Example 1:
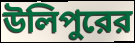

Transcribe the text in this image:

উলিপুরের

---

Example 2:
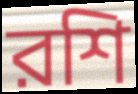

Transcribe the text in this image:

রশি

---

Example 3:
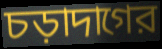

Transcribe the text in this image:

চড়াদাগের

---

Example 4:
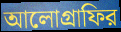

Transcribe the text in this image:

আলোগ্রাফির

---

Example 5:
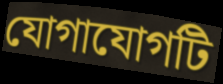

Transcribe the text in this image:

যোগাযোগটি